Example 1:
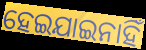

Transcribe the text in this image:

ହେଇଯାଇନାହିଁ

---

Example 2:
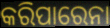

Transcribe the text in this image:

କରିପାରେନା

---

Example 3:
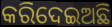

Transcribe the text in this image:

କରିଦେଇଅଛି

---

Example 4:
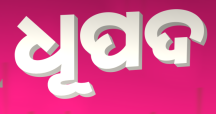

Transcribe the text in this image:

ଧୂପଦ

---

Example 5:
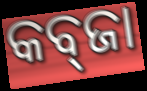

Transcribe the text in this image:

କବ୍‌ଜା